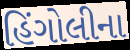
હિંગોલીના